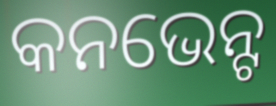
କନଭେନ୍ଟ